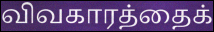
விவகாரத்தைக்